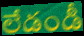
లేడండీ